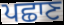
ਪਛਾਣ